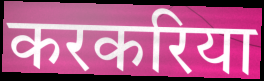
करकरिया